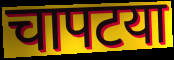
चापटया